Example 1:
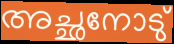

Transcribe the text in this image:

അച്ഛനോടു്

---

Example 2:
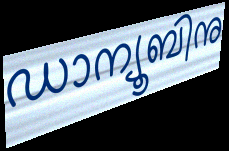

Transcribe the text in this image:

ഡാന്യൂബിനു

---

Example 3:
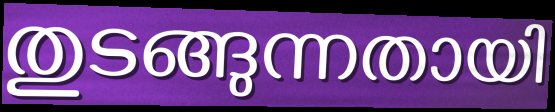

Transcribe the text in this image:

തുടങ്ങുന്നതായി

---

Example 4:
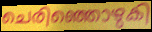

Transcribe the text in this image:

ചെരിഞ്ഞൊഴുകി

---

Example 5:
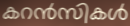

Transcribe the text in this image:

കറൻസികൾ